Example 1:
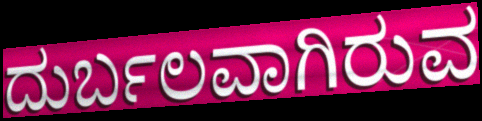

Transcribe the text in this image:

ದುರ್ಬಲವಾಗಿರುವ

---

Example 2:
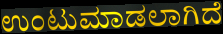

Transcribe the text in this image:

ಉಂಟುಮಾಡಲಾಗಿದೆ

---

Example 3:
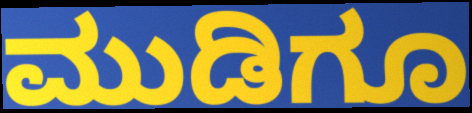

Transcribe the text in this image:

ಮುಡಿಗೂ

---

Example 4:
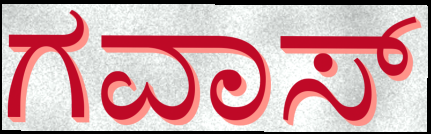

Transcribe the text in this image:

ಗವಾಸ್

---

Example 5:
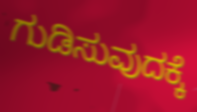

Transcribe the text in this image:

ಗುಡಿಸುವುದಕ್ಕೆ